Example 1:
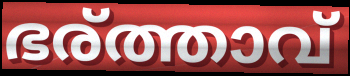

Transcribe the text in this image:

ഭര്ത്താവ്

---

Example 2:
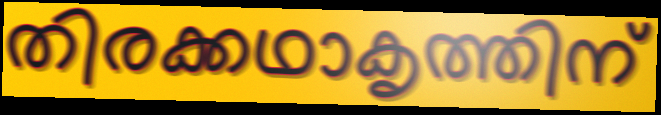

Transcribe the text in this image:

തിരക്കഥാകൃത്തിന്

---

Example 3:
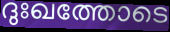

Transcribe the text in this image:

ദുഃഖത്തോടെ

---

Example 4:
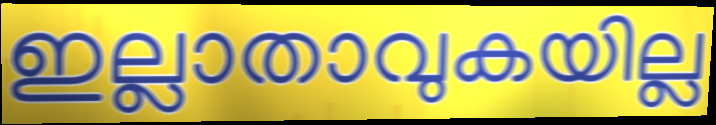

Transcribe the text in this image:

ഇല്ലാതാവുകയില്ല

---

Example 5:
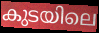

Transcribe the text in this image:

കുടയിലെ